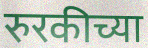
रुरकीच्या